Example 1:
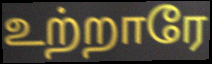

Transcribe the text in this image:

உற்றாரே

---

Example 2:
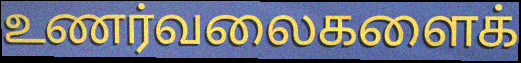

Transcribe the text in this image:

உணர்வலைகளைக்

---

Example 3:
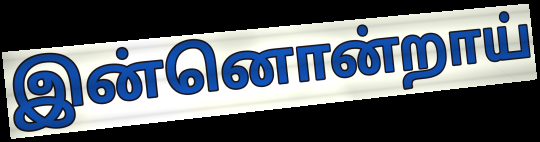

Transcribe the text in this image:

இன்னொன்றாய்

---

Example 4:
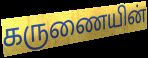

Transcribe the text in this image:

கருணையின்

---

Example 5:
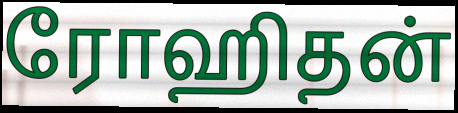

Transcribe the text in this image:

ரோஹிதன்